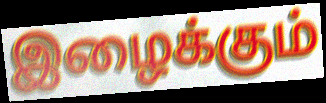
இழைக்கும்